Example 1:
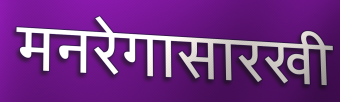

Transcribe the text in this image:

मनरेगासारखी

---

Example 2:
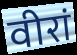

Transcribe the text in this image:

वीरां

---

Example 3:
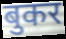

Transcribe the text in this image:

बुकर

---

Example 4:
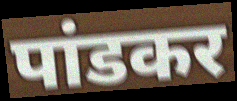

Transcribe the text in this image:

पांडकर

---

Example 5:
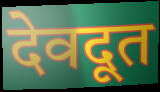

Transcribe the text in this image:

देवदूत